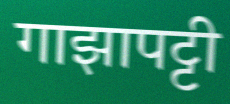
गाझापट्टी